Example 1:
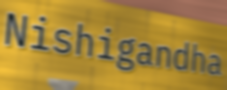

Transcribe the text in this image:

Nishigandha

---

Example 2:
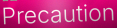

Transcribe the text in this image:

Precaution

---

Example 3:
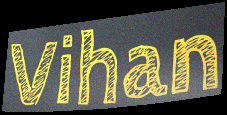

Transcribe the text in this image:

Vihan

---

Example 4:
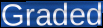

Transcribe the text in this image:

Graded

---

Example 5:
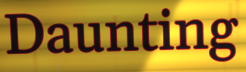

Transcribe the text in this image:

Daunting